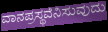
ವಾನಪ್ರಸ್ಥವೆನಿಸುವುದು